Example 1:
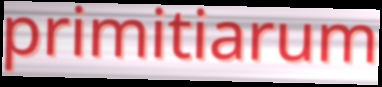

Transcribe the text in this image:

primitiarum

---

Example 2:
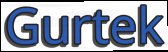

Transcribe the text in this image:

Gurtek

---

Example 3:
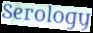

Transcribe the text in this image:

Serology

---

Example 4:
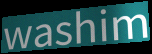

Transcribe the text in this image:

washim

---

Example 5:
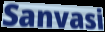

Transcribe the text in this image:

Sanvasi